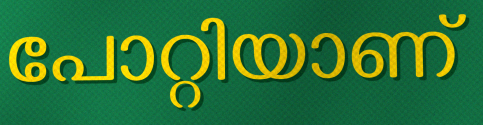
പോറ്റിയാണ്